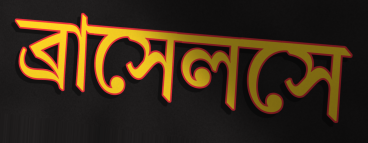
ব্রাসেলসে